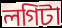
লগিটা